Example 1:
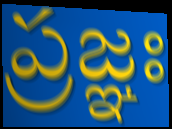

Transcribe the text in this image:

ప్రజ్ఞః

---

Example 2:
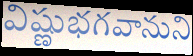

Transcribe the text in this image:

విష్ణుభగవానుని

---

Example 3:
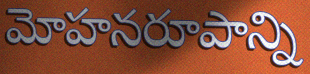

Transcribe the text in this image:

మోహనరూపాన్ని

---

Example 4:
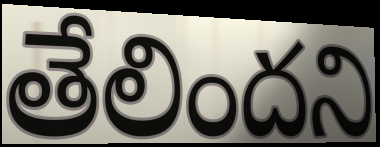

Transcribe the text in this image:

తేలిందని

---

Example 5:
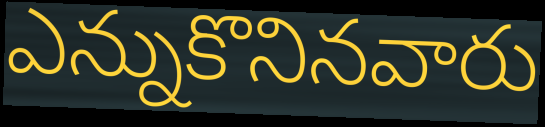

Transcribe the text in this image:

ఎన్నుకొనినవారు